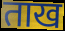
ताख